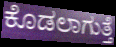
ಕೊಡಲಾಗುತ್ತೆ